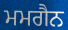
ਮਮਗੈਨ